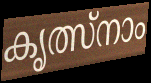
കൃത്സ്നാം